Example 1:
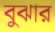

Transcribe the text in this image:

বুঝার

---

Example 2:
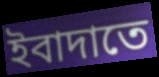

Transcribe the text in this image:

ইবাদাতে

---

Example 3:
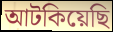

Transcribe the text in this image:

আটকিয়েছি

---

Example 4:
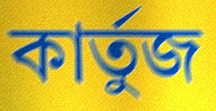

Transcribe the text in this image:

কার্তুজ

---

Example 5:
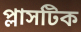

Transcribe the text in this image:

প্লাসটিক